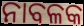
ନାବଳକ